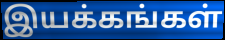
இயக்கங்கள்